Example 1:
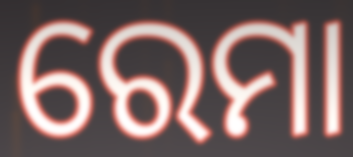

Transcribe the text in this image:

ରେମା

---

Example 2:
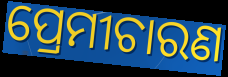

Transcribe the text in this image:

ପ୍ରେମୀଚାରଣ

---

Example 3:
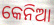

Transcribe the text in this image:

କେନିଆ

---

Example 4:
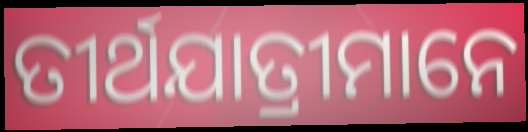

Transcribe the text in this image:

ତୀର୍ଥଯାତ୍ରୀମାନେ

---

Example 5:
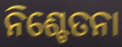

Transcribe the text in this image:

ନିଶ୍ଚେତନା